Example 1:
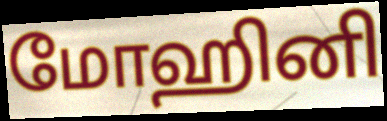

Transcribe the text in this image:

மோஹினி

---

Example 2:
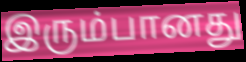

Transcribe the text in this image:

இரும்பானது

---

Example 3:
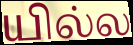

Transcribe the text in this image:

யில்ல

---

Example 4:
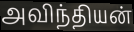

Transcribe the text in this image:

அவிந்தியன்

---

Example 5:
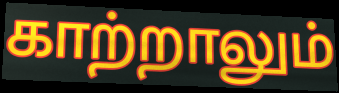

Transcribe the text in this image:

காற்றாலும்